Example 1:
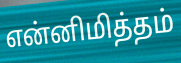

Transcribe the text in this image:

என்னிமித்தம்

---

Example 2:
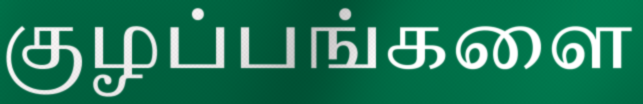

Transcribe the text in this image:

குழப்பங்களை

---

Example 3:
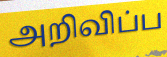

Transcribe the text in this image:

அறிவிப்ப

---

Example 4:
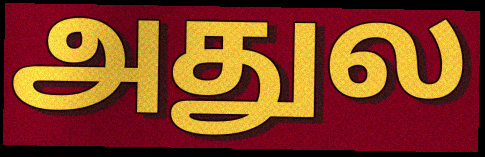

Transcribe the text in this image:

அதுல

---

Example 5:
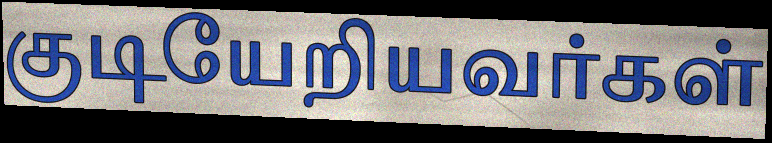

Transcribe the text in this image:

குடியேறியவர்கள்